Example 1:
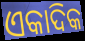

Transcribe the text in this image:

ଏକାଦିକ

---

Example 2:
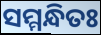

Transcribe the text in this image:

ସମ୍ମନ୍ଧିତଃ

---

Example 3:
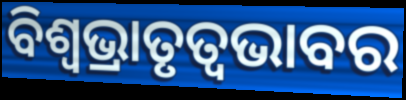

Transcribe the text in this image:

ବିଶ୍ଵଭ୍ରାତୃତ୍ୱଭାବର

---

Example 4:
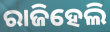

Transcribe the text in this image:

ରାଜିହେଲି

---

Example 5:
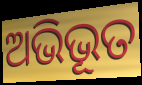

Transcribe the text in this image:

ଅଭିଭୂତ